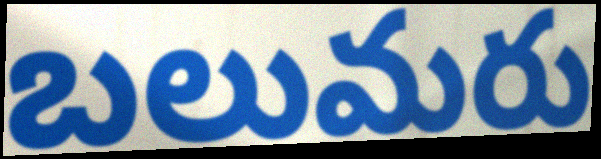
బలుమరు